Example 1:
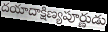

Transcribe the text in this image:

దయాదాక్షిణ్యపూర్ణుడు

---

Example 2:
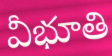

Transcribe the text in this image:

వీభూతి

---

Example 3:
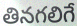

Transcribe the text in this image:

తినగలిగే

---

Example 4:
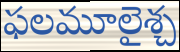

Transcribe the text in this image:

ఫలమూలైశ్చ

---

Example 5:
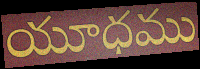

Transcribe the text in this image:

యూధము